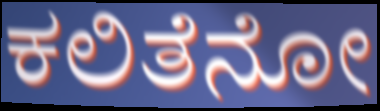
ಕಲಿತೆನೋ